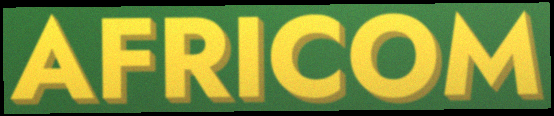
AFRICOM